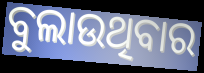
ବୁଲାଉଥିବାର